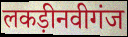
लकड़ीनवीगंज